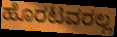
ಹೊರಟವರಲ್ಲ